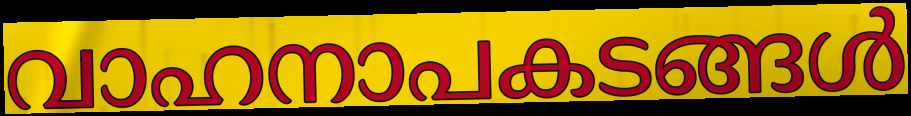
വാഹനാപകടങ്ങൾ